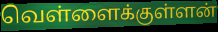
வெள்ளைக்குள்ளன்